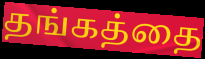
தங்கத்தை